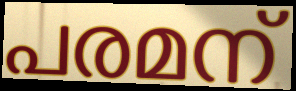
പരമന്